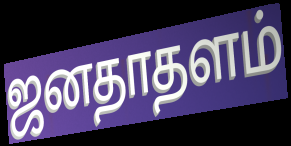
ஜனதாதளம்